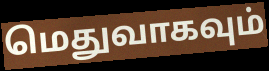
மெதுவாகவும்